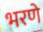
भरणे